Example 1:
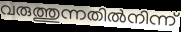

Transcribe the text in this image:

വരുത്തുന്നതിൽനിന്ന്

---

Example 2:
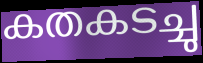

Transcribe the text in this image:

കതകടച്ചു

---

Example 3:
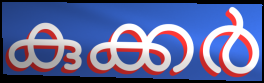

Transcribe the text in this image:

കുക്കർ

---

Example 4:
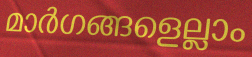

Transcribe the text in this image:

മാർഗങ്ങളെല്ലാം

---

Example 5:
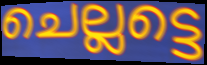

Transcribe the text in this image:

ചെല്ലട്ടെ